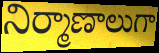
నిర్మాణాలుగా